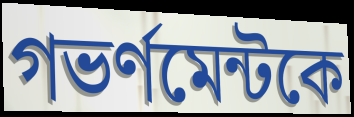
গভর্ণমেন্টকে